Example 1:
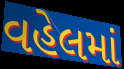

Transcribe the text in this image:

વહેલમાં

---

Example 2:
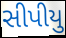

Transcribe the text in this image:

સીપીયુ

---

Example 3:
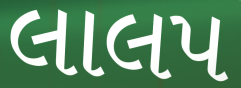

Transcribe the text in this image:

લાલપ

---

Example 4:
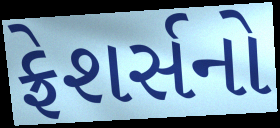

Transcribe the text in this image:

ફ્રેશર્સનો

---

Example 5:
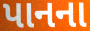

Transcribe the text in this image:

પાનના